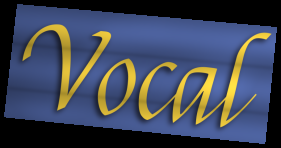
Vocal